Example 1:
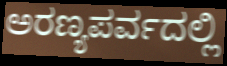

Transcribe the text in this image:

ಅರಣ್ಯಪರ್ವದಲ್ಲಿ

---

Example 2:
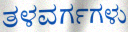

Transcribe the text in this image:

ತಳವರ್ಗಗಳು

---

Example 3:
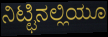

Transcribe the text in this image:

ನಿಟ್ಟಿನಲ್ಲಿಯೂ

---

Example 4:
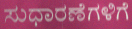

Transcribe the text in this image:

ಸುಧಾರಣೆಗಳಿಗೆ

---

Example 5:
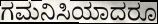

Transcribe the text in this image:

ಗಮನಿಸಿಯಾದರೂ